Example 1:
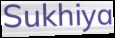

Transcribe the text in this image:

Sukhiya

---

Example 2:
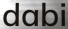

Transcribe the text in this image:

dabi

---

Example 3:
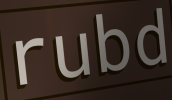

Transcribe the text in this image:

rubd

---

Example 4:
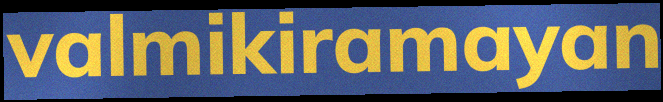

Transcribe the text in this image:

valmikiramayan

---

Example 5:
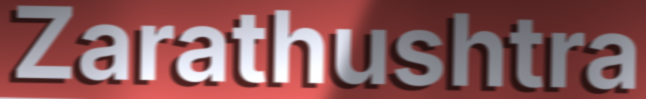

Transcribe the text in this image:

Zarathushtra